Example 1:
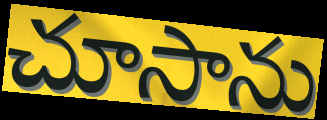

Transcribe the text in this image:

చూసాను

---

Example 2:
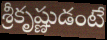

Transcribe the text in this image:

శ్రీకృష్ణుడంటే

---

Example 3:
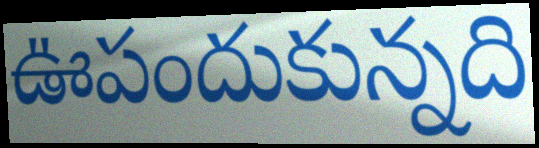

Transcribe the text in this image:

ఊపందుకున్నది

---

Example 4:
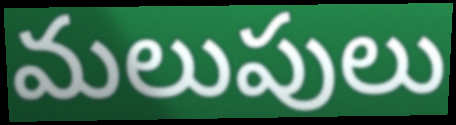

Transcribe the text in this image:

మలుపులు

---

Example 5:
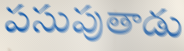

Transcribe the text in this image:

పసుపుతాడు